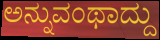
ಅನ್ನುವಂಥಾದ್ದು